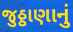
જુઠ્ઠાણાનું